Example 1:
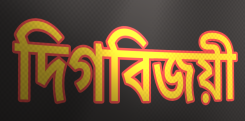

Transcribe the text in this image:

দিগবিজয়ী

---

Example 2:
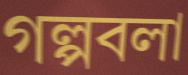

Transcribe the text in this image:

গল্পবলা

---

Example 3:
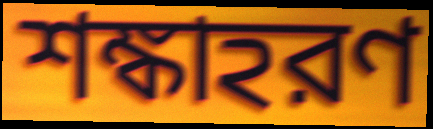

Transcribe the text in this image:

শঙ্কাহরণ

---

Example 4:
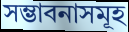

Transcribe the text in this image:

সম্ভাবনাসমূহ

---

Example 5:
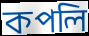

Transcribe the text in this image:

কপলি